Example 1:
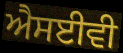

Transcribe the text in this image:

ਐਸਈਵੀ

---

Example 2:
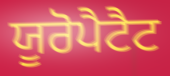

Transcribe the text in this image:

ਯੂਰੋਪੈਟੈਟ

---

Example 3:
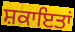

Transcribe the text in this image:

ਸ਼ਕਾਇਤਾਂ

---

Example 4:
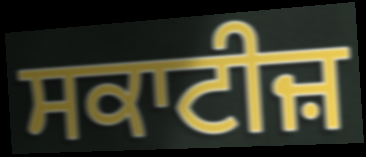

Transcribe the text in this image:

ਸਕਾਟੀਜ਼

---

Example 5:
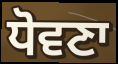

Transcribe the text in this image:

ਧੋਵਣਾ